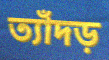
ত্যাঁদড়